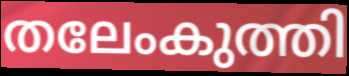
തലേംകുത്തി